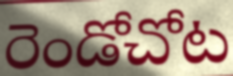
రెండోచోట